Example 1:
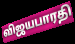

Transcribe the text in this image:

விஜயபாரதி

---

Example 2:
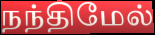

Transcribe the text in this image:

நந்திமேல்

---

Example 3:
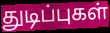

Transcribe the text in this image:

துடிப்புகள்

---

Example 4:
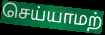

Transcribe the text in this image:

செய்யாமற்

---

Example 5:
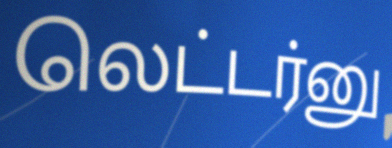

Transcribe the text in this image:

லெட்டர்னு